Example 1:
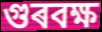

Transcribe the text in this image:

গুৰবক্ষ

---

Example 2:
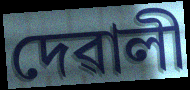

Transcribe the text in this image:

দেৱালী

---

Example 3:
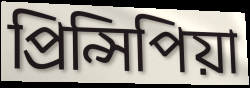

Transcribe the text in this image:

প্ৰিন্সিপিয়া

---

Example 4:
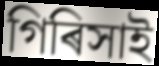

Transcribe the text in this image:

গিৰিসাই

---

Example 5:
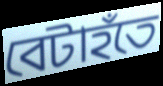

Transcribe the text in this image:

বেটাহঁতে